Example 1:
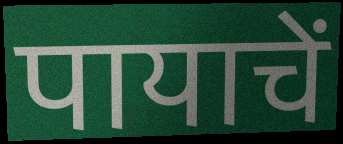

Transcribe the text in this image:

पायाचें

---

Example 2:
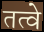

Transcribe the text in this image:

तत्वे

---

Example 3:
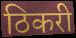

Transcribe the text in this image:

ठिकरी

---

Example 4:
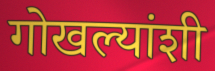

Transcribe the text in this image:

गोखल्यांशी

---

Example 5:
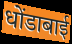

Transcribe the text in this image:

धोंडाबाई